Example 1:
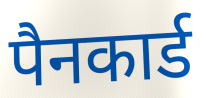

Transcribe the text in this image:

पैनकार्ड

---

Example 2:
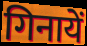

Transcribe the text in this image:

गिनायें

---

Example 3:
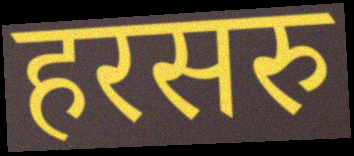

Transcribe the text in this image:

हरसरु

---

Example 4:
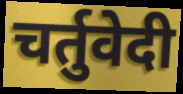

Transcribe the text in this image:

चर्तुवेदी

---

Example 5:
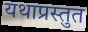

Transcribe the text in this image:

यथाप्रस्तुत